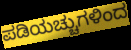
ಪಡಿಯಚ್ಚುಗಳಿಂದ